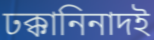
ঢক্কানিনাদই